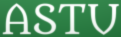
ASTU